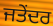
ਜਤੇਂਦਰ